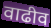
वाढीव